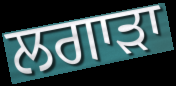
ਲਗਾੜਾ